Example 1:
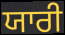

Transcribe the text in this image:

ਯਾਰੀ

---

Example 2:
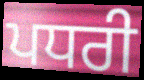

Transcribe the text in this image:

ਪਧਰੀ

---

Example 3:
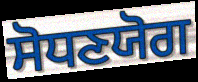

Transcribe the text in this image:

ਸੋਧਣਯੋਗ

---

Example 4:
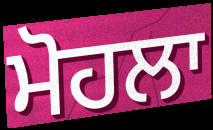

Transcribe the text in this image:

ਮੋਹਲਾ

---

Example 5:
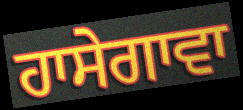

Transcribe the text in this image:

ਹਾਸੇਗਾਵਾ